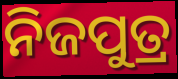
ନିଜପୁତ୍ର